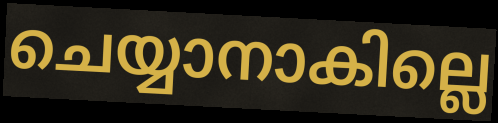
ചെയ്യാനാകില്ലെ